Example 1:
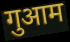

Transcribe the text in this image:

गुआम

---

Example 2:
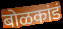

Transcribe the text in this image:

बोळकांडं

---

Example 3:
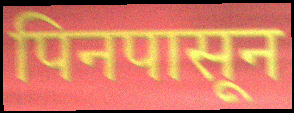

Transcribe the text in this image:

पिनपासून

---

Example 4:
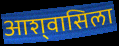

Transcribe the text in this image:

आश्वासिला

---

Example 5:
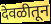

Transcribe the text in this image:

देवळीतून